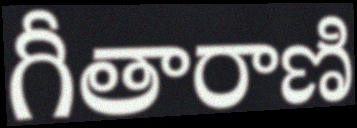
గీతారాణి